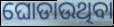
ଘୋଡାଉଥିବା